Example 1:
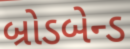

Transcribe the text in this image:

બ્રોડબેન્ડ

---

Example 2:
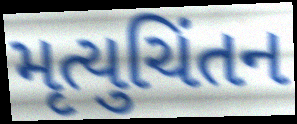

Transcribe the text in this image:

મૃત્યુચિંતન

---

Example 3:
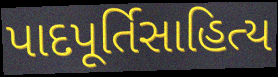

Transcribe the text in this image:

પાદપૂર્તિસાહિત્ય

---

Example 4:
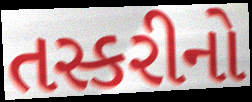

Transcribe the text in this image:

તસ્કરીનો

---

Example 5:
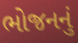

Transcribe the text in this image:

ભોજનનું